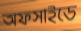
অফসাইডে